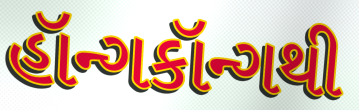
હૉન્ગકૉન્ગથી